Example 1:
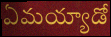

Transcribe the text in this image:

ఏమయ్యాడో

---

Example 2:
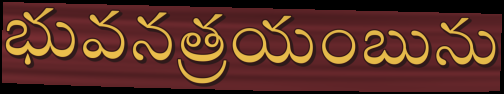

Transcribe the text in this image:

భువనత్రయంబును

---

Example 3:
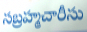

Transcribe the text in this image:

సబ్రహ్మచారీసు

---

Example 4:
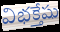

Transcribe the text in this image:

విభక్తేషు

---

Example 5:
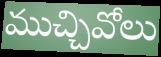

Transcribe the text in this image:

ముచ్చివోలు